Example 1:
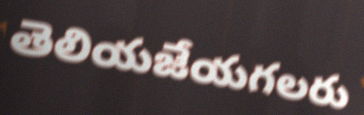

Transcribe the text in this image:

తెలియజేయగలరు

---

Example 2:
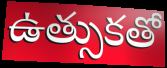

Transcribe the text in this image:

ఉత్సుకతో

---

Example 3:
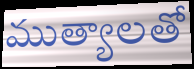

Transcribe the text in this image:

ముత్యాలతో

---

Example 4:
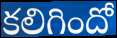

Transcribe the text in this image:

కలిగిందో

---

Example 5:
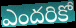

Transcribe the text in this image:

ఎందరికో